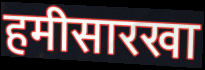
हमीसारखा